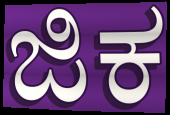
ಜಿಕ